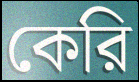
কেরি